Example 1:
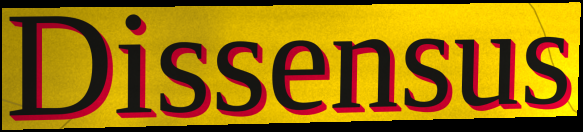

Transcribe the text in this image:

Dissensus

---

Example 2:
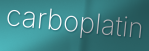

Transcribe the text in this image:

carboplatin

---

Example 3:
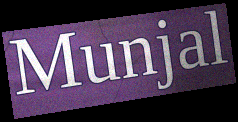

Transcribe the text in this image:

Munjal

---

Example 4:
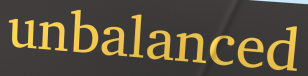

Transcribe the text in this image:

unbalanced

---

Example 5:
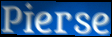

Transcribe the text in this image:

Pierse